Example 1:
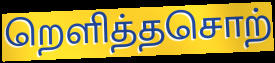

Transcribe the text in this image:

றெளித்தசொற்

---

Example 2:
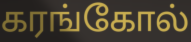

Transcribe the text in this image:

கரங்கோல்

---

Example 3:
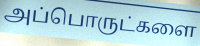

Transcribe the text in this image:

அப்பொருட்களை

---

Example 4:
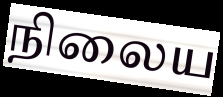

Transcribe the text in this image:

நிலைய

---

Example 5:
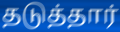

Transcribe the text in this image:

தடுத்தார்